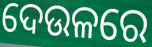
ଦେଉଳରେ